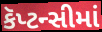
કૅપ્ટન્સીમાં